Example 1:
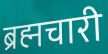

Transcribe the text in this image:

ब्रह्मचारी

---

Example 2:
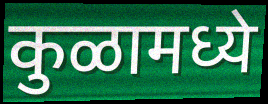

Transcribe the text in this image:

कुळामध्ये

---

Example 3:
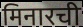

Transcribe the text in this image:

मिनारची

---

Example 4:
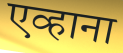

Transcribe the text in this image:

एव्हाना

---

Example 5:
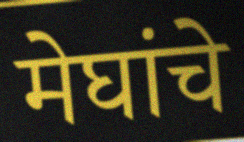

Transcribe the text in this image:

मेघांचे